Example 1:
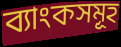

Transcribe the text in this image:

ব্যাংকসমূহ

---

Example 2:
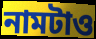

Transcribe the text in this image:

নামটাও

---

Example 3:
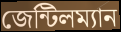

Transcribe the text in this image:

জেন্টিলম্যান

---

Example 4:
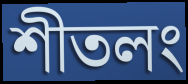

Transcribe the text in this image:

শীতলং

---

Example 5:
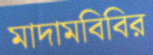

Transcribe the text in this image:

মাদামবিবির